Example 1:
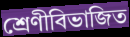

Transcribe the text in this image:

শ্রেণীবিভাজিত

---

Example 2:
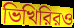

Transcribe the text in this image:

ভিখিরিরও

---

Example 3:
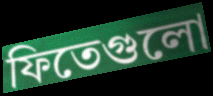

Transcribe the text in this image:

ফিতেগুলো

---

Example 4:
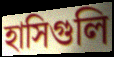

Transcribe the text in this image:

হাসিগুলি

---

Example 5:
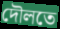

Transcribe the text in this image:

দৌলতে